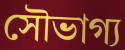
সৌভাগ্য